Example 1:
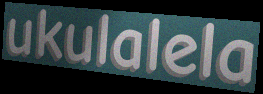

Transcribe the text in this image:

ukulalela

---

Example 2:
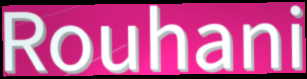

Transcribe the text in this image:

Rouhani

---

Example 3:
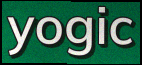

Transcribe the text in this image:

yogic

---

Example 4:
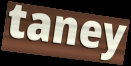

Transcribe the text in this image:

taney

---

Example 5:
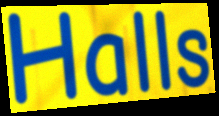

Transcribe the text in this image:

Halls